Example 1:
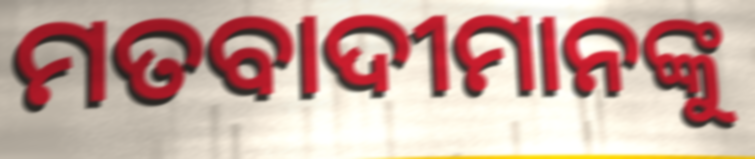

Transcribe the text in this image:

ମତବାଦୀମାନଙ୍କୁ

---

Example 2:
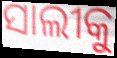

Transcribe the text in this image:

ସାଲୀକୁ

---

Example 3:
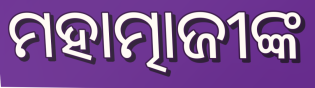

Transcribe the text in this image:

ମହାତ୍ମାଜୀଙ୍କ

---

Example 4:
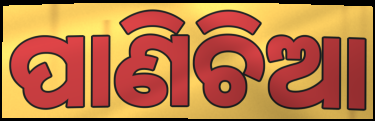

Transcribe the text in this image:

ପାଣିଚିଆ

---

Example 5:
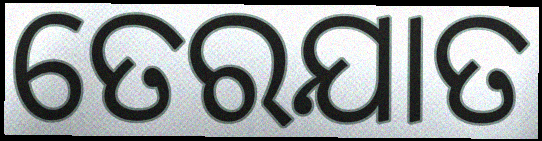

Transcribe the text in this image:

ତେରଯାତ